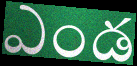
ఎండ